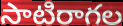
సాటిరాగల